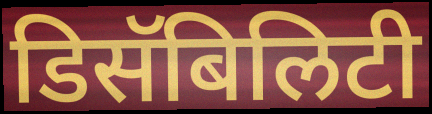
डिसॅबिलिटी